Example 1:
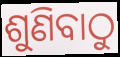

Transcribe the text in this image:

ଶୁଣିବାଠୁ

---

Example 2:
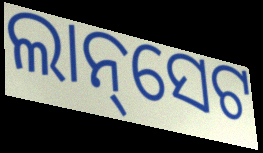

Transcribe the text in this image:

ଲାନ୍‌ସେଟ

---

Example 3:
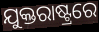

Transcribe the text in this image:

ଯୁକ୍ତରାଷ୍ଟ୍ରରେ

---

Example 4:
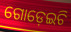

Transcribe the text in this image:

ଗୋଡ଼େଇଚି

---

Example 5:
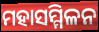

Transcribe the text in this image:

ମହାସମ୍ମିଳନ